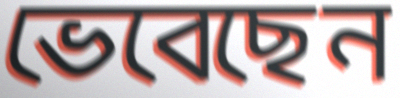
ভেবেছেন